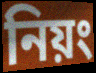
নিয়ং